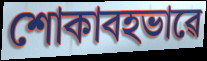
শোকাবহভাৱে